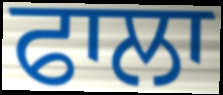
ਫਾਲਾ